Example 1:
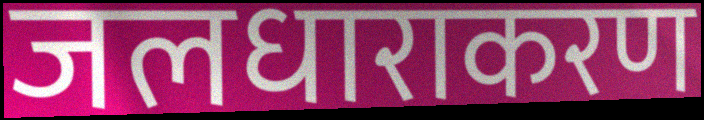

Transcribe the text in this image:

जलधाराकरण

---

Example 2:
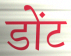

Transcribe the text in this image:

डोंट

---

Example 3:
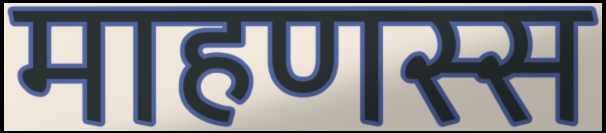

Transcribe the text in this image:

माहणस्स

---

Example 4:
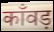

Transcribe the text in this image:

काँवड़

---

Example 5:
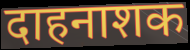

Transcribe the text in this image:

दाहनाशक